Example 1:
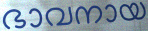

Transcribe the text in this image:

ഭാവനായ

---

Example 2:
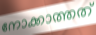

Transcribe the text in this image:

നോക്കാത്തത്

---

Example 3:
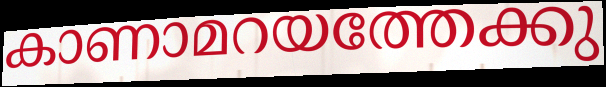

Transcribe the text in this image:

കാണാമറയത്തേക്കു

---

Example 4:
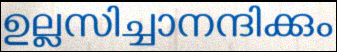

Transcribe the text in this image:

ഉല്ലസിച്ചാനന്ദിക്കും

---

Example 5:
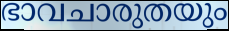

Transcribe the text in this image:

ഭാവചാരുതയും